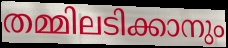
തമ്മിലടിക്കാനും